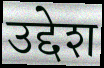
उद्देश